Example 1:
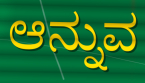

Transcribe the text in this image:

ಆನ್ನುವ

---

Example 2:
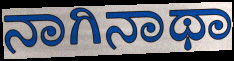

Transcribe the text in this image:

ನಾಗಿನಾಥಾ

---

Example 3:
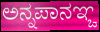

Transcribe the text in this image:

ಅನ್ನಪಾನಞ್ಚ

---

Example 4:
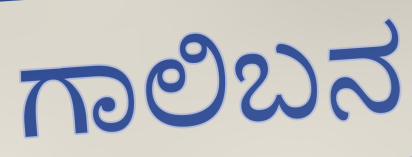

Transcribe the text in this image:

ಗಾಲಿಬನ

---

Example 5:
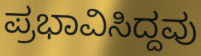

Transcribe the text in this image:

ಪ್ರಭಾವಿಸಿದ್ದವು